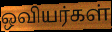
ஒவியர்கள்